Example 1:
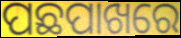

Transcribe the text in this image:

ପଛପାଖରେ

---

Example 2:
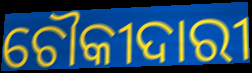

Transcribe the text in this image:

ଚୌକୀଦାରୀ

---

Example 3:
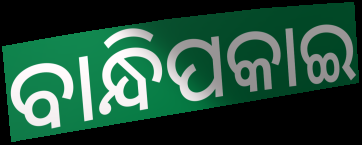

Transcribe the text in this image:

ବାନ୍ଧିପକାଇ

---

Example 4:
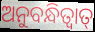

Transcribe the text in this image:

ଅନୁବନ୍ଧିତ୍ଵାତ୍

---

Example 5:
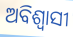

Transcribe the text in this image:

ଅବିଶ୍ଵାସୀ